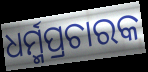
ଧର୍ମ୍ମପ୍ରଚାରକ